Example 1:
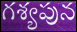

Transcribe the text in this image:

గశ్యపున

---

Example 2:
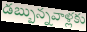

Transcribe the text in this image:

డబ్బున్నవాళ్లకు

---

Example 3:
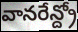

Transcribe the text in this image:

వానరేన్ద్రో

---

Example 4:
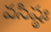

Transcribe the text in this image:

వసిష్ఠః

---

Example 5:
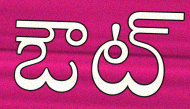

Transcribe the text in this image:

ఔట్